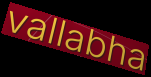
vallabha